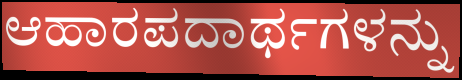
ಆಹಾರಪದಾರ್ಥಗಳನ್ನು